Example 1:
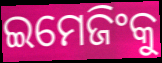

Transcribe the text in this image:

ଇମେଜିଂକୁ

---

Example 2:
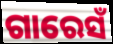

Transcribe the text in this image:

ଗାରେସଁ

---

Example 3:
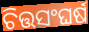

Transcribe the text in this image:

ଚିତ୍ତସଂଘର୍ଷ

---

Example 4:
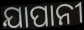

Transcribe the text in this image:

ଯାପାନୀ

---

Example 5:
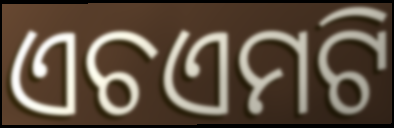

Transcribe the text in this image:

ଏଚଏମଟି